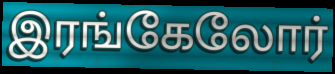
இரங்கேலோர்